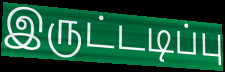
இருட்டடிப்பு